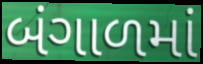
બંગાળમાં